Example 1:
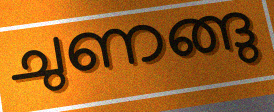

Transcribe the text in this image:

ചുണങ്ങു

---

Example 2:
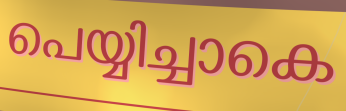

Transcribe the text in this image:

പെയ്യിച്ചാകെ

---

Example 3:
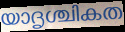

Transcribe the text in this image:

യാദൃശ്ചികത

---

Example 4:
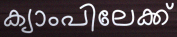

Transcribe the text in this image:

ക്യാംപിലേക്ക്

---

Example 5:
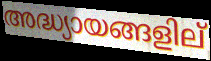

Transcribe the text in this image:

അദ്ധ്യായങ്ങളില്